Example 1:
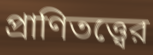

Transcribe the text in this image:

প্রাণিতত্ত্বের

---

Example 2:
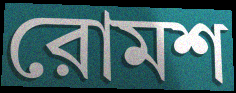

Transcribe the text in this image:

রোমশ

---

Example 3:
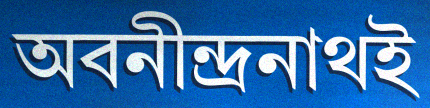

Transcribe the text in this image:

অবনীন্দ্রনাথই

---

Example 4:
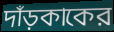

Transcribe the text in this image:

দাঁড়কাকের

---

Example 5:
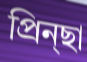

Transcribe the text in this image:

প্রিন্ছা